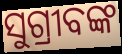
ସୁଗ୍ରୀବଙ୍କ